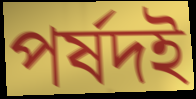
পর্ষদই